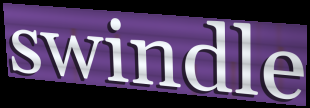
swindle